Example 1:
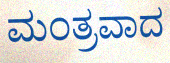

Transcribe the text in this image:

ಮಂತ್ರವಾದ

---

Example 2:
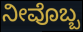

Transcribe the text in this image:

ನೀವೊಬ್ಬ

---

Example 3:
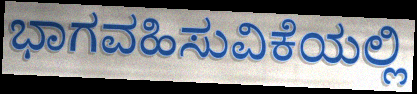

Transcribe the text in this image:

ಭಾಗವಹಿಸುವಿಕೆಯಲ್ಲಿ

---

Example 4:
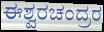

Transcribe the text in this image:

ಈಶ್ವರಚಂದ್ರರ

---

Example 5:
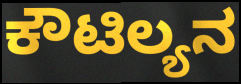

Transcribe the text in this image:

ಕೌಟಿಲ್ಯನ